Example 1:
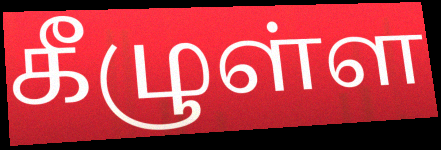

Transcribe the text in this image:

கீழுள்ள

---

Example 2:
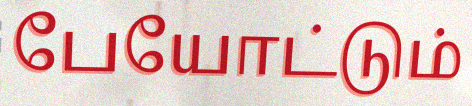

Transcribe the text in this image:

பேயோட்டும்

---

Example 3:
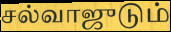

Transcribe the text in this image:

சல்வாஜுடும்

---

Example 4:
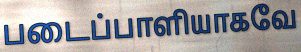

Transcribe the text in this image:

படைப்பாளியாகவே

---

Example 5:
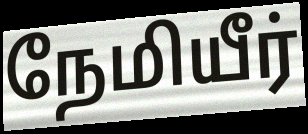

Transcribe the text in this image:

நேமியீர்